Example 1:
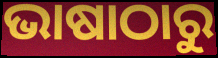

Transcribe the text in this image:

ଭାଷାଠାରୁ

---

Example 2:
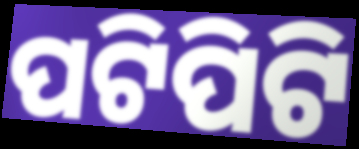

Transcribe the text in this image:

ପଟିପିଟି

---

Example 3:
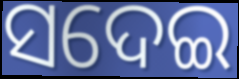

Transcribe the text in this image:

ସଦେଇ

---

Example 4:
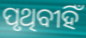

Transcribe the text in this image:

ପୃଥିବୀହିଁ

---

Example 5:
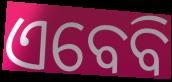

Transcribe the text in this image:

ଏବେବି